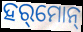
ହର୍‌ମୋନ୍